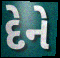
દેને